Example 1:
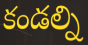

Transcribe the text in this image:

కండల్ని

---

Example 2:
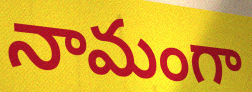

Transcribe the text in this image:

నామంగా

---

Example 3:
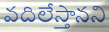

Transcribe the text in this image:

వదిలేస్తానని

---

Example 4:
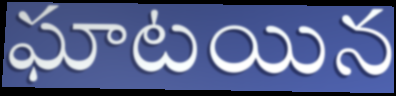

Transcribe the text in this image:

ఘాటయిన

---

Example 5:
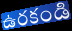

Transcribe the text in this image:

ఉరకండి